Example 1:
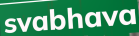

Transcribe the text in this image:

svabhava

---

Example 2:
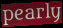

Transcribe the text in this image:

pearly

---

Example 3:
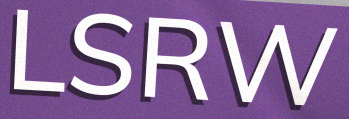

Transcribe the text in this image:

LSRW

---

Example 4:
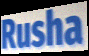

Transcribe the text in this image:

Rusha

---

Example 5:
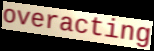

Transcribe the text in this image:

overacting